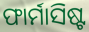
ଫାର୍ମାସିଷ୍ଟ